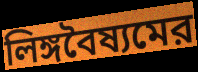
লিঙ্গবৈষ্যমের